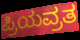
ಪ್ರಿಯವ್ರತ